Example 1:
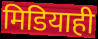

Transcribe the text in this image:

मिडियाही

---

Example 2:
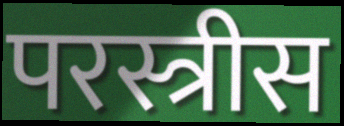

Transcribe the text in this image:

परस्त्रीस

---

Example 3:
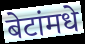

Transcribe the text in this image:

बेटांमधे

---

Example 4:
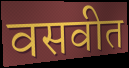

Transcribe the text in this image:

वसवीत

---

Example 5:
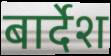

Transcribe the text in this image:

बार्देश